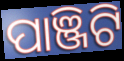
ପାଞ୍ଜିଟି